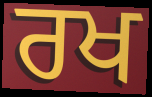
ਰਖ